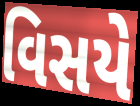
વિસયે